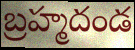
బ్రహ్మదండ